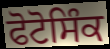
ਫੋਟੋਸਿੰਕ